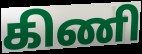
கிணி